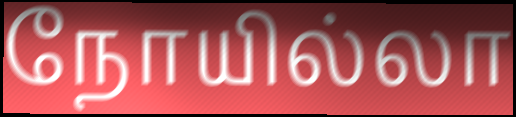
நோயில்லா